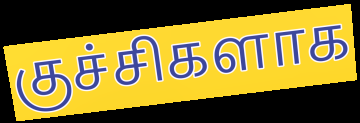
குச்சிகளாக